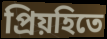
প্রিয়হিতে